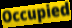
Occupied